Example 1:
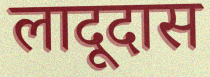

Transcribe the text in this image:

लादूदास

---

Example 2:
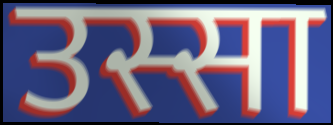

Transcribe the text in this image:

उस्सा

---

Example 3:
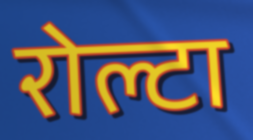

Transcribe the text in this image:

रोल्टा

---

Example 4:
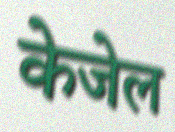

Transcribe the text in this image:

केजेल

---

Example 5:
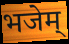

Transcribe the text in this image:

भजेम्